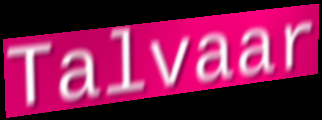
Talvaar